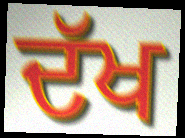
ਦੱਖ